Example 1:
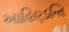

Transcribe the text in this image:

આહિણ્ડન્તિ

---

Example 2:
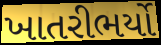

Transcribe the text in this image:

ખાતરીભર્યો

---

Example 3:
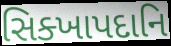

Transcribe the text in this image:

સિક્ખાપદાનિ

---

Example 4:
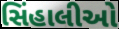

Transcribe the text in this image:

સિંહાલીઓ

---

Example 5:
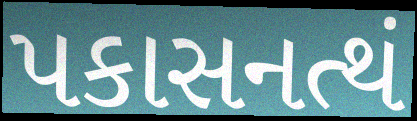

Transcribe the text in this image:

પકાસનત્થં